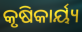
କୃଷିକାର୍ୟ୍ୟ